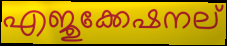
എജുക്കേഷനല്